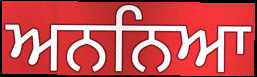
ਅਨਨਿਆ